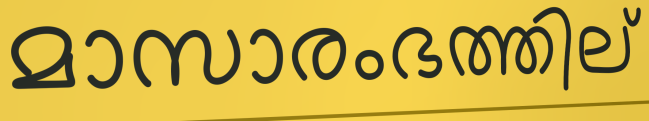
മാസാരംഭത്തില്